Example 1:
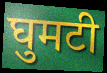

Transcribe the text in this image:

घुमटी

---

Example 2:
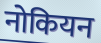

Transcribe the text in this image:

नोकियन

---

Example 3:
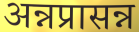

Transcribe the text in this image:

अन्नप्रासन्न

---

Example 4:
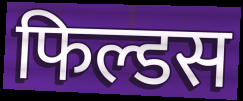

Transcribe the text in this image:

फिल्डस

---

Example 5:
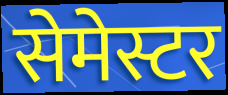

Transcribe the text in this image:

सेमेस्टर